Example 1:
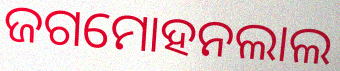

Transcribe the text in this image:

ଜଗମୋହନଲାଲ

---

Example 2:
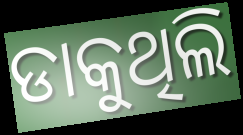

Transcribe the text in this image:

ଡାକୁଥିଲି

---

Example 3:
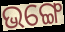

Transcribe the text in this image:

ଭଙ୍ଗେ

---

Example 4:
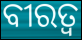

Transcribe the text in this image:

ବୀରତ୍ୱ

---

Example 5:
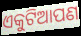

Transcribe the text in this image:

ଏକୁଟିଆପଣ